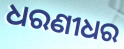
ଧରଣୀଧର